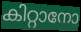
കിറ്റാനോ